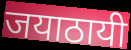
जयाठायी